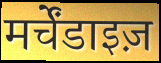
मर्चेंडाइज़